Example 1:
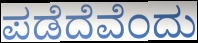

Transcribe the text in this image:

ಪಡೆದೆವೆಂದು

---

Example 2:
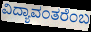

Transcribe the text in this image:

ವಿದ್ಯಾವಂತರೆಂಬ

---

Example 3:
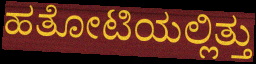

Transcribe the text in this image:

ಹತೋಟಿಯಲ್ಲಿತ್ತು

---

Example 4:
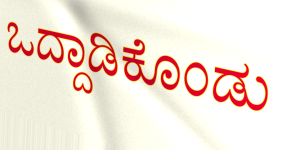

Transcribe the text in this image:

ಒದ್ದಾಡಿಕೊಂಡು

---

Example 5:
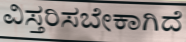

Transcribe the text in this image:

ವಿಸ್ತರಿಸಬೇಕಾಗಿದೆ